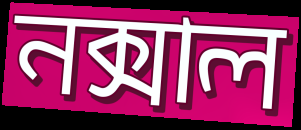
নক্সাল